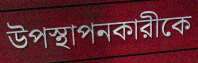
উপস্থাপনকারীকে